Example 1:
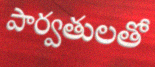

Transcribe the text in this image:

పార్వతులతో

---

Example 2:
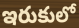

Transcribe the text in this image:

ఇరుకులో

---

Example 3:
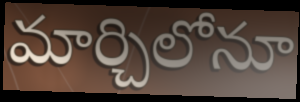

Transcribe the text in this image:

మార్చిలోనూ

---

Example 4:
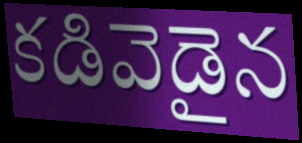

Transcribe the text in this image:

కడివెడైన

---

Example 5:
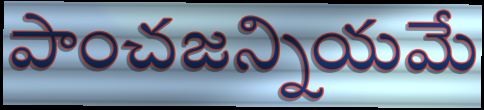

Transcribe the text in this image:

పాంచజన్నియమే